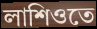
লাশিওতে